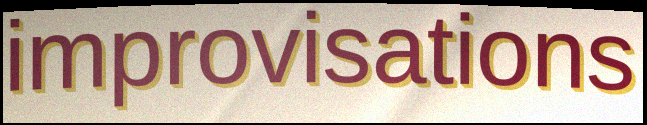
improvisations